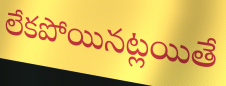
లేకపోయినట్లయితే